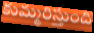
కుమ్మరిస్తుంది